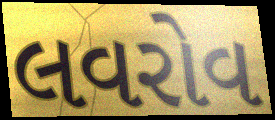
લવરોવ